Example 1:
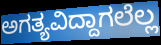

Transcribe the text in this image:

ಅಗತ್ಯವಿದ್ದಾಗಲೆಲ್ಲ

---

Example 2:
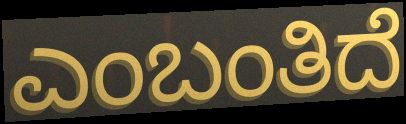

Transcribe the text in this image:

ಎಂಬಂತಿದೆ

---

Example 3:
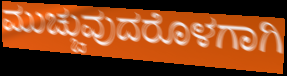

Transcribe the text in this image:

ಮುಚ್ಚುವುದರೊಳಗಾಗಿ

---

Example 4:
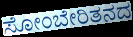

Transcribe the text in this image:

ಸೋಂಬೇರಿತನದ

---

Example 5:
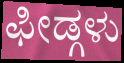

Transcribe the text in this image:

ಫೀಡ್ಗಳು